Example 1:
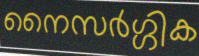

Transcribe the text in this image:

നൈസർഗ്ഗിക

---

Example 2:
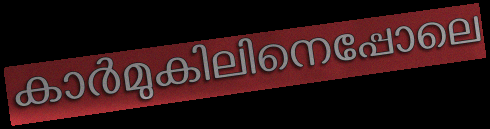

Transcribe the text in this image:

കാർമുകിലിനെപ്പോലെ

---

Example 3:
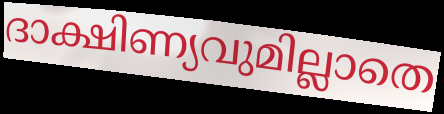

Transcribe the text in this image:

ദാക്ഷിണ്യവുമില്ലാതെ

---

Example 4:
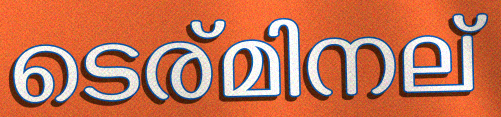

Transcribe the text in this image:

ടെര്മിനല്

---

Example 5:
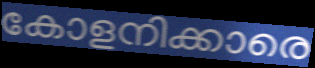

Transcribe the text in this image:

കോളനിക്കാരെ